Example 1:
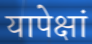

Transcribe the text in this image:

यापेक्षां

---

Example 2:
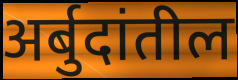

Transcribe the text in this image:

अर्बुदांतील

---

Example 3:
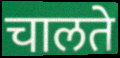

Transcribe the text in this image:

चालते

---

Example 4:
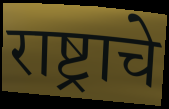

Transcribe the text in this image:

राष्ट्राचे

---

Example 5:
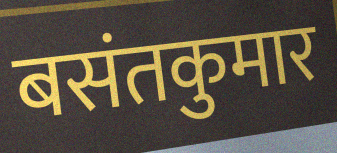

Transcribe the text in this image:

बसंतकुमार